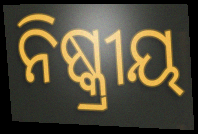
ନିଷ୍କ୍ରୀୟ